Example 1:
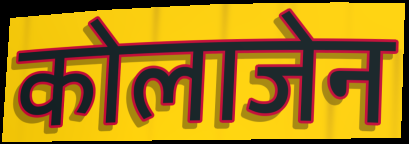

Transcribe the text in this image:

कोलाजेन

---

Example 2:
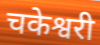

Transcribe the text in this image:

चकेश्वरी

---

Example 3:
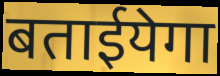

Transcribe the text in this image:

बताईयेगा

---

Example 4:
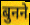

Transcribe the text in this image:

बुनने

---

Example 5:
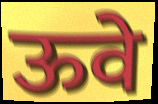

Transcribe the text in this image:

ऊवे